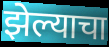
झेल्याचा